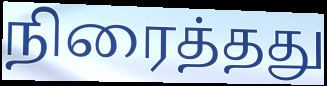
நிரைத்தது